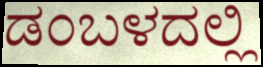
ಡಂಬಳದಲ್ಲಿ